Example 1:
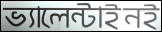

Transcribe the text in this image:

ভ্যালেন্টাইনই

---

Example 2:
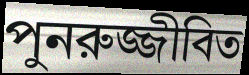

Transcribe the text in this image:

পুনরুজ্জীবিত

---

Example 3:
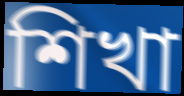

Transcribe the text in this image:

শিখা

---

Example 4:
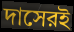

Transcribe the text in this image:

দাসেরই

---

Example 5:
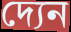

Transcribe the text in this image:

দ্যেন